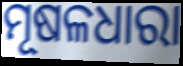
ମୂଷଳଧାରା